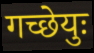
गच्छेयुः